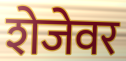
शेजेवर